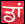
ਡਾਂ